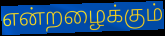
என்றழைக்கும்